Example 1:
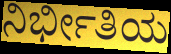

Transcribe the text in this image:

ನಿರ್ಭೀತಿಯ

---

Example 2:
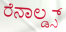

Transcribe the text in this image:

ರೆನಾಲ್ಡ್ಸ್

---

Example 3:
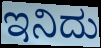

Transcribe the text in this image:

ಇನಿದು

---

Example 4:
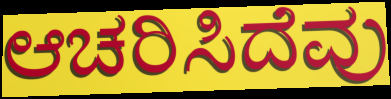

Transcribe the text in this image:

ಆಚರಿಸಿದೆವು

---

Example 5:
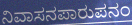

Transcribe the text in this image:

ನಿವಾಸನಪಾರುಪನಂ